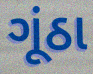
ગૂંઠા